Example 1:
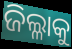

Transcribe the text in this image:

ଜିଲ୍ଳାକୁ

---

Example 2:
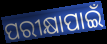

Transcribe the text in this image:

ପରୀକ୍ଷାପାଇଁ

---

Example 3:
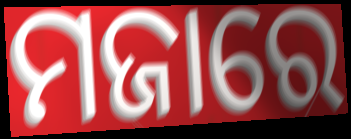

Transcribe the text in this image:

ମଜାରେ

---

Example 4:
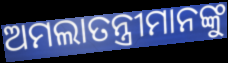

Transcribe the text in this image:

ଅମଲାତନ୍ତ୍ରୀମାନଙ୍କୁ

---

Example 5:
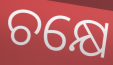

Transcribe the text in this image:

ଚକ୍ଷେ